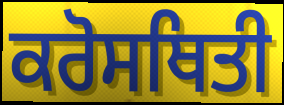
ਕਰੋਸਥਿਤੀ